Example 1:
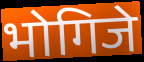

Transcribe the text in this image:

भोगिजे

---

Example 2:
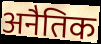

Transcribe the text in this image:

अनैतिक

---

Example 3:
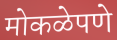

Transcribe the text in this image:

मोकळेपणे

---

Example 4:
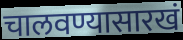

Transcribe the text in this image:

चालवण्यासारखं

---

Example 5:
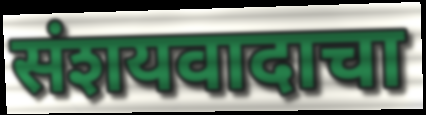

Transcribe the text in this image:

संशयवादाचा